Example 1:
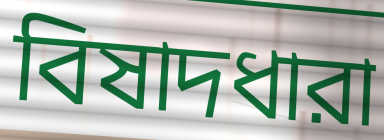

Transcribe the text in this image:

বিষাদধারা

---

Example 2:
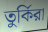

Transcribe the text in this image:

তুর্কিরা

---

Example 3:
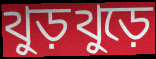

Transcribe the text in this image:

থুড়থুড়ে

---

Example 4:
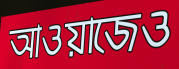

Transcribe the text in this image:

আওয়াজেও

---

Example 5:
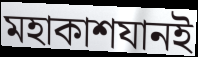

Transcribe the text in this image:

মহাকাশযানই